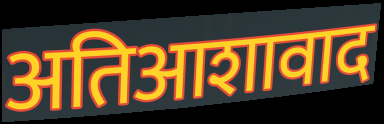
अतिआशावाद